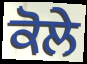
ਕੋਲੇ